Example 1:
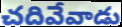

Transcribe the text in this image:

చదివేవాడు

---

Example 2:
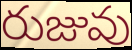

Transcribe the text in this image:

రుజువు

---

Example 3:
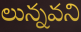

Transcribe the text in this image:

లున్నవని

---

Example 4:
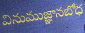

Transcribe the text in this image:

వినుముజ్ఞానబోధ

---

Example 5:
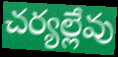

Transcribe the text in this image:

చర్యల్లేవు